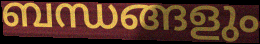
ബന്ധങ്ങളും